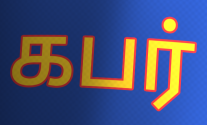
கபர்